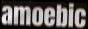
amoebic